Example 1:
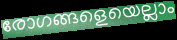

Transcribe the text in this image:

രോഗങ്ങളെയെല്ലാം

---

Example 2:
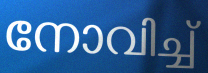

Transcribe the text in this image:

നോവിച്ച്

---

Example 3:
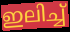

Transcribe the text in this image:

ഇലിച്ച്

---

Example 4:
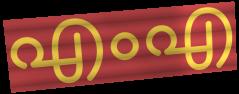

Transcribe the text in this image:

എംഎ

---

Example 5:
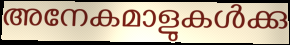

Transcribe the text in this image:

അനേകമാളുകൾക്കു